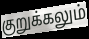
குறுக்கலும்